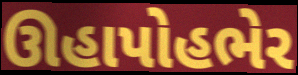
ઊહાપોહભેર